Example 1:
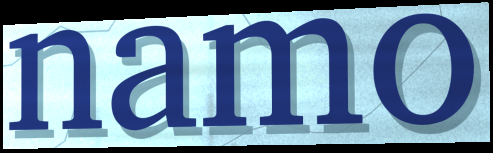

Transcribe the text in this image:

namo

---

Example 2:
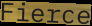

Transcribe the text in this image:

Fierce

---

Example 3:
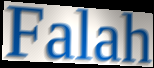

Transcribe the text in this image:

Falah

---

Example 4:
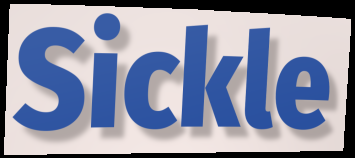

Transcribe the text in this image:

Sickle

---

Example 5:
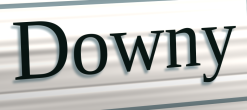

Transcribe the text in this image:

Downy